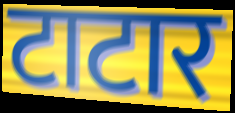
टाटार